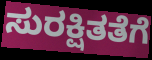
ಸುರಕ್ಷಿತತೆಗೆ